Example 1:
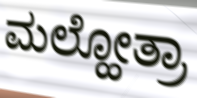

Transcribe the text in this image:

ಮಲ್ಹೋತ್ರಾ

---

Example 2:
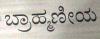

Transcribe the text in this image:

ಬ್ರಾಹ್ಮಣೀಯ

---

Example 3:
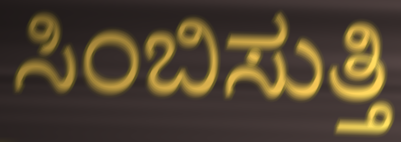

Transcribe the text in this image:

ಸಿಂಬಿಸುತ್ತಿ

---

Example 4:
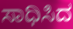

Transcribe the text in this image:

ಸಾಧಿಸಿದ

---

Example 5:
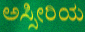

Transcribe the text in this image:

ಅಸ್ಸೀರಿಯ